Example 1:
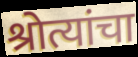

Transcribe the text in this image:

श्रोत्यांचा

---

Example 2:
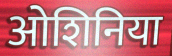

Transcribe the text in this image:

ओशिनिया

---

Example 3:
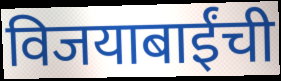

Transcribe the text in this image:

विजयाबाईंची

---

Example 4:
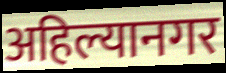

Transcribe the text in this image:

अहिल्यानगर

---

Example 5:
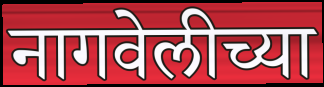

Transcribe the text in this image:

नागवेलीच्या